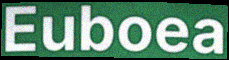
Euboea